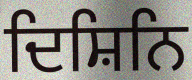
ਦਿਸ਼ਿਨਿ